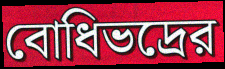
বোধিভদ্রের